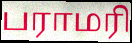
பராமரி